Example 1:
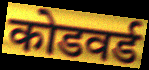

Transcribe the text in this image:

कोडवर्ड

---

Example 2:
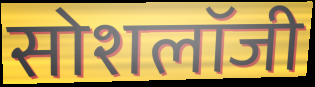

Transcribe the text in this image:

सोशलॉजी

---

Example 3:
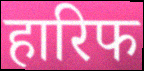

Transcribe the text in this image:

हारिफ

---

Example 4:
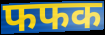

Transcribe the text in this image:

फफक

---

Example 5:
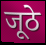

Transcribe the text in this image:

जूठे